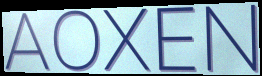
AOXEN